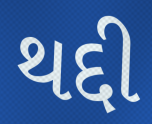
થદ્દી